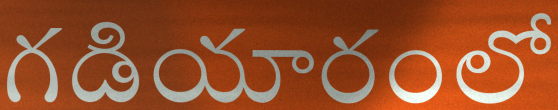
గడియారంలో